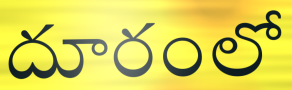
దూరంలో